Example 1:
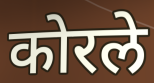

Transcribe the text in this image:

कोरले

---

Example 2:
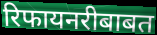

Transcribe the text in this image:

रिफायनरीबाबत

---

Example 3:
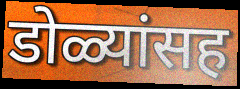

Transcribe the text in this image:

डोळ्यांसह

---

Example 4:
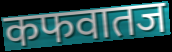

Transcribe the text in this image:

कफवातज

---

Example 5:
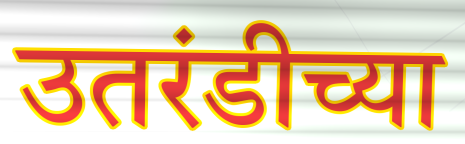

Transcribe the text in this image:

उतरंडीच्या